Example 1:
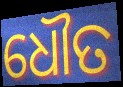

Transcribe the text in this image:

ଧୌତ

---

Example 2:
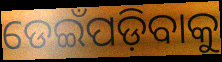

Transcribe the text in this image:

ଡେଇଁପଡ଼ିବାକୁ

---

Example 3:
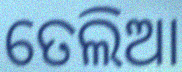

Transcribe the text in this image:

ତେଲିଆ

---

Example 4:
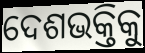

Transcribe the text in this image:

ଦେଶଭକ୍ତିକୁ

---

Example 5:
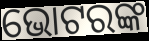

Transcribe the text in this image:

ଭୋଟରଙ୍କ